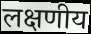
लक्षणीय